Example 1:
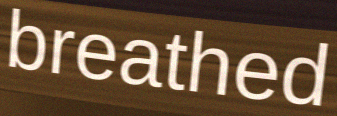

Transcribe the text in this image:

breathed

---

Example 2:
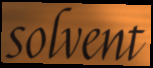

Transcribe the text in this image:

solvent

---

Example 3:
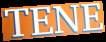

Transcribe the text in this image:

TENE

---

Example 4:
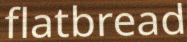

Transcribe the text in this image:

flatbread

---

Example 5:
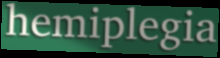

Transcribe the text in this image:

hemiplegia